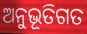
ଅନୁଭୂତିଗତ